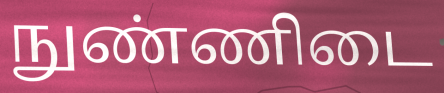
நுண்ணிடை